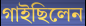
গাইছিলেন